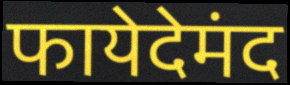
फायेदेमंद